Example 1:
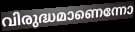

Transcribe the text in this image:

വിരുദ്ധമാണെന്നോ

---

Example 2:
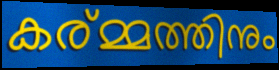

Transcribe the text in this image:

കര്മ്മത്തിനും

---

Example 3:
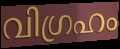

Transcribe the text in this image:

വിഗ്രഹം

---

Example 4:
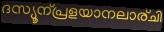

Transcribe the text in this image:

ദസ്യൂന്പ്രളയാനലാര്ചി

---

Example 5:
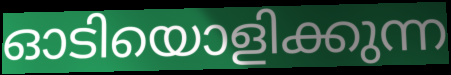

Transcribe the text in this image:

ഓടിയൊളിക്കുന്ന